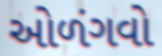
ઓળંગવો